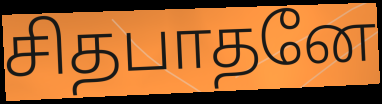
சிதபாதனே